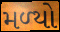
મળ્‍યો